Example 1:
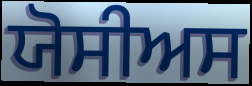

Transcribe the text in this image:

ਯੋਸੀਅਸ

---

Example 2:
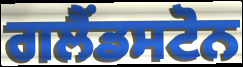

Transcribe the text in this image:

ਗਲੈਂਡਸਟੋਨ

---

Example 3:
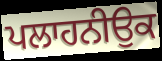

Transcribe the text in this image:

ਪਲਾਹਨੀਉਕ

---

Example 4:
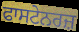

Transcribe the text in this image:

ਫਾਸਟੇਨਰਜ਼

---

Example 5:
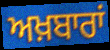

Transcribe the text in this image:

ਅਖ਼ਬਾਰਾਂ